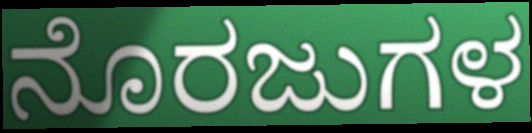
ನೊರಜುಗಳ